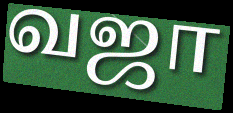
வஜா